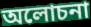
অলোচনা